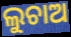
ଲୁଚାଅ